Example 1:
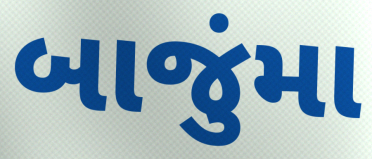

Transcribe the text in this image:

બાજુંમા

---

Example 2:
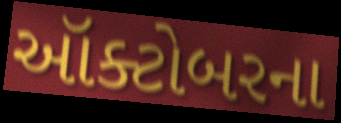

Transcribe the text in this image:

ઑક્ટોબરના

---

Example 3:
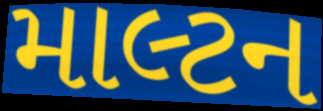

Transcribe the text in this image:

માલ્ટન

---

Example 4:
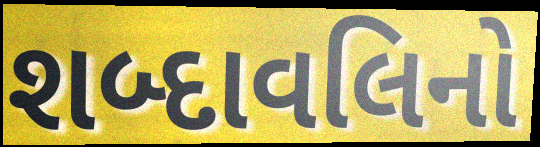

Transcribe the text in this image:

શબ્દાવલિનો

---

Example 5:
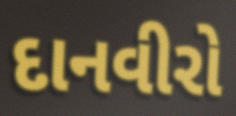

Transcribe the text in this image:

દાનવીરો